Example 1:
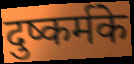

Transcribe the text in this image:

दुष्कर्मके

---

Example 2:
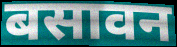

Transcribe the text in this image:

बसावन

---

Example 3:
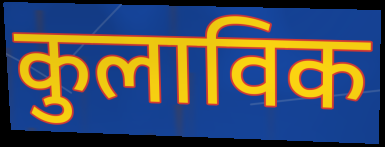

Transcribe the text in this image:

कुलाविक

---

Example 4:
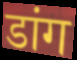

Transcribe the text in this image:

डांग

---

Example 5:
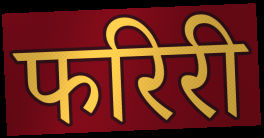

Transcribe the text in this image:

फरिरी